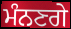
ਮੰਨਣਗੇ